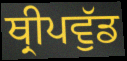
ਥ੍ਰੀਪਵੁੱਡ